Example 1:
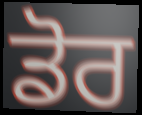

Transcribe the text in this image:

ਡੋਰ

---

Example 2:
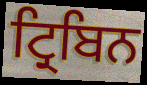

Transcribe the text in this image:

ਟ੍ਰਿਬਿਨ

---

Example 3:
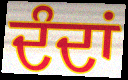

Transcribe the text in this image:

ਦੰਦਾਂ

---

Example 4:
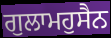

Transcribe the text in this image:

ਗੁਲਾਮਹੁਸੈਨ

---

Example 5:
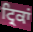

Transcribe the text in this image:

ਟ੍ਰਿਕਾਂ